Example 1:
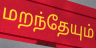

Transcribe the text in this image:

மறந்தேயும்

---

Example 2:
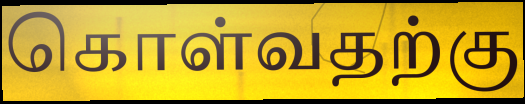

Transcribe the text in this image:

கொள்வதற்கு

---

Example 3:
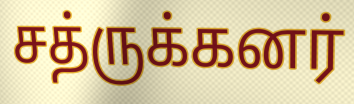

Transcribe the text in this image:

சத்ருக்கனர்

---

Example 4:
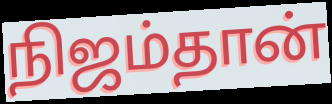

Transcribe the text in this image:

நிஜம்தான்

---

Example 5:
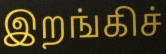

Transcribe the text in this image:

இறங்கிச்